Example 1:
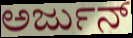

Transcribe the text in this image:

ಅರ್ಜುನ್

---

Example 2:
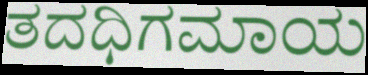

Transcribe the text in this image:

ತದಧಿಗಮಾಯ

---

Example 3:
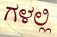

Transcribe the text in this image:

ಗಳಲ್ಲಿ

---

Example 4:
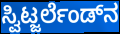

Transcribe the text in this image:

ಸ್ವಿಟ್ಜರ್ಲೆಂಡ್‌ನ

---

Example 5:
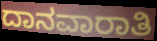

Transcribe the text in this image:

ದಾನವಾರಾತಿ